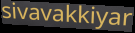
sivavakkiyar